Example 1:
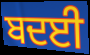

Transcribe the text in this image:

ਬਦਈ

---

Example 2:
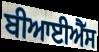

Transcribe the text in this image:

ਬੀਆਈਐੱਸ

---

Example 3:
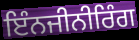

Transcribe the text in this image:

ਇੰਨਜੀਨੀਰਿੰਗ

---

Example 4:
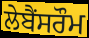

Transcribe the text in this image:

ਲੇਬੈਂਸਰੌਮ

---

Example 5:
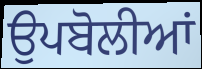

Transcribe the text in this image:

ਉਪਬੋਲੀਆਂ